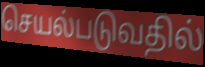
செயல்படுவதில்